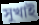
সুখাই